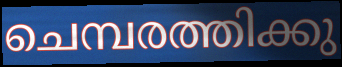
ചെമ്പരത്തിക്കു